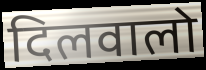
दिलवालो